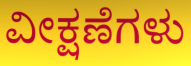
ವೀಕ್ಷಣೆಗಳು